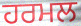
ਹਰਮਲ